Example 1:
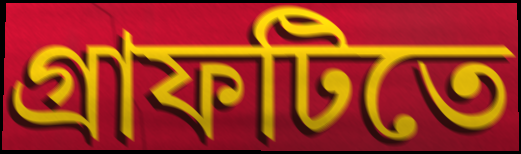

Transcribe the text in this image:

গ্রাফটিতে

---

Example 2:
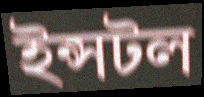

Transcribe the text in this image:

ইন্সটল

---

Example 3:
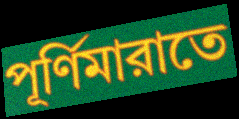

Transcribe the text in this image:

পূর্ণিমারাতে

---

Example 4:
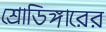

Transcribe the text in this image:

শ্রোডিঙ্গারের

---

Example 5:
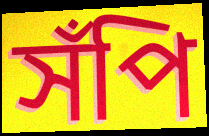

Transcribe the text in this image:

সঁপি